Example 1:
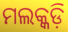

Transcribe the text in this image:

ମଲକ୍କଡ଼ି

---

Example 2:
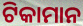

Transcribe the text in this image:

ଟିକାମାନ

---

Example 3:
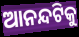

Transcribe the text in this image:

ଆନନ୍ଦଟିକୁ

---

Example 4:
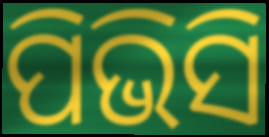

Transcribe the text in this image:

ପିଭିସି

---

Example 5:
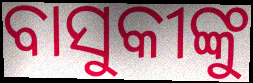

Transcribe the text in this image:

ବାସୁକୀଙ୍କୁ